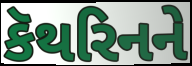
કૅથરિનને